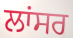
ਲਾਂਸਰ